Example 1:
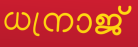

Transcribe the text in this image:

ധന്രാജ്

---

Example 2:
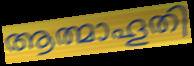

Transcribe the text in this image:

ആത്മാഹൂതി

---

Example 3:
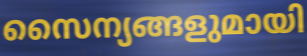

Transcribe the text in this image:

സൈന്യങ്ങളുമായി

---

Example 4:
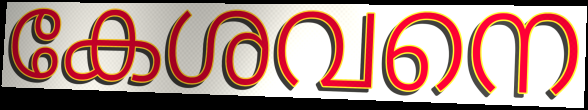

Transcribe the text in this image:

കേശവനെ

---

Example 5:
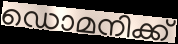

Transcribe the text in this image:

ഡൊമനിക്ക്